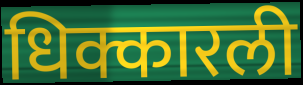
धिक्कारली